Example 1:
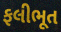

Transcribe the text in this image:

ફલીભૂત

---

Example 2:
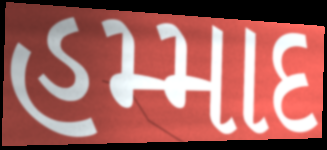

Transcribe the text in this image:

હમ્માદ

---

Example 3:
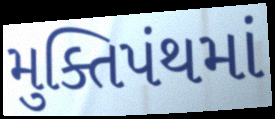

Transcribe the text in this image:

મુક્તિપંથમાં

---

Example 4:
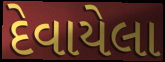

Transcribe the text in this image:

દેવાયેલા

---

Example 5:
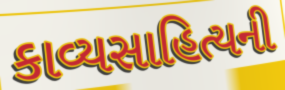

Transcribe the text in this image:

કાવ્યસાહિત્યની